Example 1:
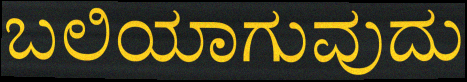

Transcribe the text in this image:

ಬಲಿಯಾಗುವುದು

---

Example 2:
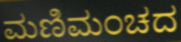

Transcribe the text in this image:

ಮಣಿಮಂಚದ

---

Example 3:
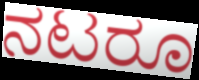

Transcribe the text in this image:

ನಟರೂ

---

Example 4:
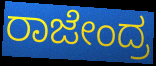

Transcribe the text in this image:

ರಾಜೇಂದ್ರ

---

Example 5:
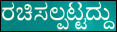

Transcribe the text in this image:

ರಚಿಸಲ್ಪಟ್ಟದ್ದು